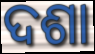
ଦଶା